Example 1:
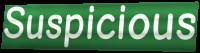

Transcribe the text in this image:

Suspicious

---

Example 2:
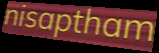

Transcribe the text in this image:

nisaptham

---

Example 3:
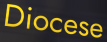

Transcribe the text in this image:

Diocese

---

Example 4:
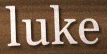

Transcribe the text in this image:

luke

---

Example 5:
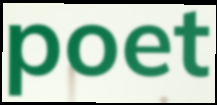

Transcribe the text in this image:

poet